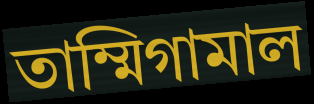
তাম্মিগামাল